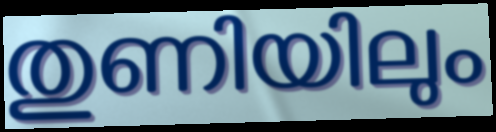
തുണിയിലും